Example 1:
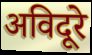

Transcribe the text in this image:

अविदूरे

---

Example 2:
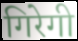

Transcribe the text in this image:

गिरेगी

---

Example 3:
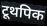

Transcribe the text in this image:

टूथपिक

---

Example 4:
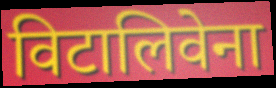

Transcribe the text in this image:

विटालिवेना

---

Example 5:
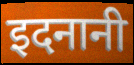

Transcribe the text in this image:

इदनानी